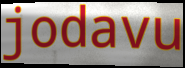
jodavu